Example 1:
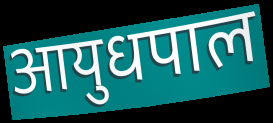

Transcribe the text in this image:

आयुधपाल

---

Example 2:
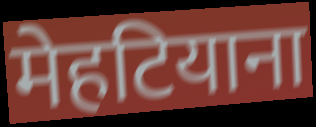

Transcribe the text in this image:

मेहटियाना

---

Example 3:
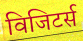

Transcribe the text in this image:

विजिटर्स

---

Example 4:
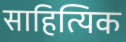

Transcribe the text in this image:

साहित्यिक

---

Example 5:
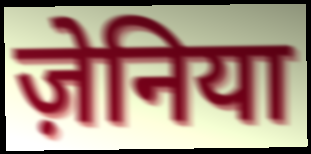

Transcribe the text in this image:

ज़ेनिया